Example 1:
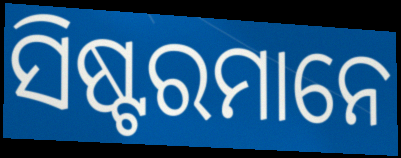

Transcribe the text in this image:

ସିଷ୍ଟରମାନେ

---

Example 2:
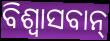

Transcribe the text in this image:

ବିଶ୍ଵାସବାନ୍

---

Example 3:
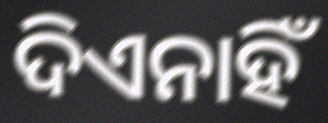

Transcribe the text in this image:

ଦିଏନାହିଁ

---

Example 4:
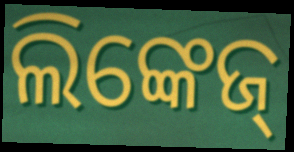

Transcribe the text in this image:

ଲିଙ୍କେଜ୍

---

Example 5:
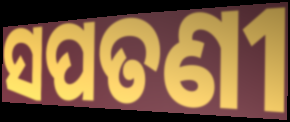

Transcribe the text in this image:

ସପତଣୀ